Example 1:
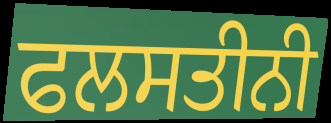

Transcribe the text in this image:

ਫਲਸਤੀਨੀ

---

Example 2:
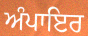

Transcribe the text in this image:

ਅੰਪਾਇਰ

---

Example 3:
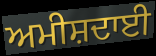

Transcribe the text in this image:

ਅਮੀਸ਼ਦਾਈ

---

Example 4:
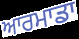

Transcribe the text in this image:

ਆਰਮਾਡਾ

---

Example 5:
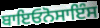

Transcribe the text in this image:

ਬਾਇਓਨੋਸਾਇੰਸ